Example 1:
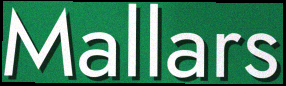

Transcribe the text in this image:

Mallars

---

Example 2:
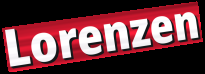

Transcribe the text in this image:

Lorenzen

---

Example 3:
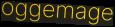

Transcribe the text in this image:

oggemage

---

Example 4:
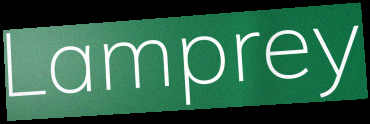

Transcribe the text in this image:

Lamprey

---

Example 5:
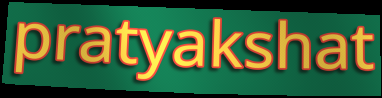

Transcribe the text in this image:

pratyakshat